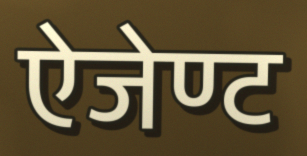
ऐजेण्ट